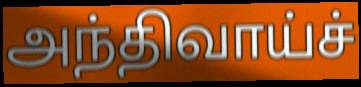
அந்திவாய்ச்